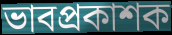
ভাবপ্রকাশক